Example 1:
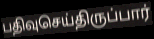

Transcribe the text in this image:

பதிவுசெய்திருப்பார்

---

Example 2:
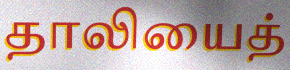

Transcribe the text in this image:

தாலியைத்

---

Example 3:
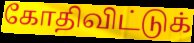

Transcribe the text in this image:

கோதிவிட்டுக்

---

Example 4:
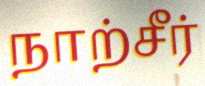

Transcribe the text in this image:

நாற்சீர்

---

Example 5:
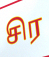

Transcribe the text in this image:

சிர